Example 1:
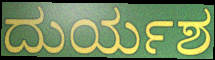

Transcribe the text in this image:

ದುರ್ಯಶ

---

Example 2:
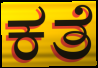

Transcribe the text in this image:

ಕತೆ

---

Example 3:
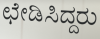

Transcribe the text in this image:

ಛೇಡಿಸಿದ್ದರು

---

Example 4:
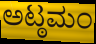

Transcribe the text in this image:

ಅಟ್ಠಮಂ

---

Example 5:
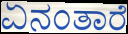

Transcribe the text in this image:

ಏನಂತಾರೆ